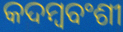
କଦମ୍ବବଂଶୀ